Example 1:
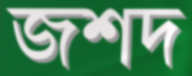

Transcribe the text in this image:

জশদ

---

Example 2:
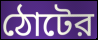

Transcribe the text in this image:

ঠোটের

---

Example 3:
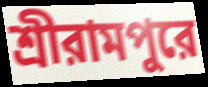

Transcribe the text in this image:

শ্রীরামপুরে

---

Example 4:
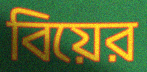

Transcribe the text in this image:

বিয়ের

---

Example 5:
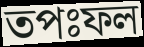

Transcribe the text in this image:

তপঃফল